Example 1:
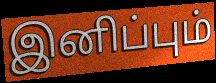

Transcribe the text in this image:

இனிப்பும்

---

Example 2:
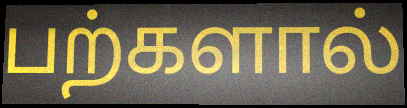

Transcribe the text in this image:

பற்களால்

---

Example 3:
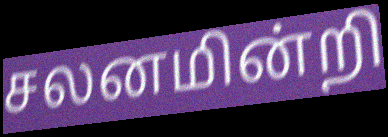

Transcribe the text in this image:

சலனமின்றி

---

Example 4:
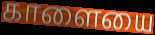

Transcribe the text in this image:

காளையை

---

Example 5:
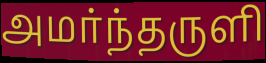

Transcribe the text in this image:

அமர்ந்தருளி